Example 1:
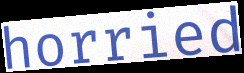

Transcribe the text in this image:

horried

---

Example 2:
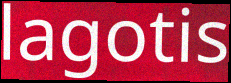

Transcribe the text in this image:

lagotis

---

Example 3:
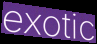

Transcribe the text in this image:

exotic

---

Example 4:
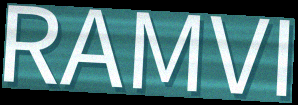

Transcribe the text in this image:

RAMVI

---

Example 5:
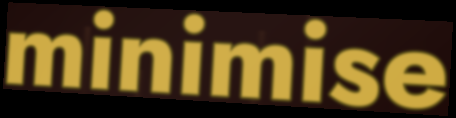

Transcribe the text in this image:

minimise